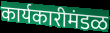
कार्यकारीमंडळ